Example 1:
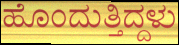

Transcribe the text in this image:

ಹೊಂದುತ್ತಿದ್ದಳು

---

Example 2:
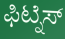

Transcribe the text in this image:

ಫಿಟ್ನೆಸ್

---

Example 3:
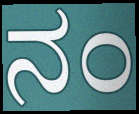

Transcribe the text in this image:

ನಂ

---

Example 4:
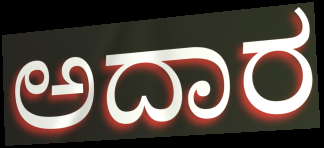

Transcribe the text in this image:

ಅದಾರ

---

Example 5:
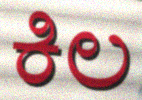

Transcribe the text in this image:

ಕಿಲ